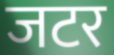
जटर